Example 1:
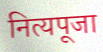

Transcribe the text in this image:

नित्यपूजा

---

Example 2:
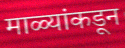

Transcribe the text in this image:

माळ्यांकडून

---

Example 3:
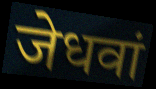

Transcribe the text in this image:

जेधवां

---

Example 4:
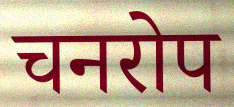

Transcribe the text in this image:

चनरोप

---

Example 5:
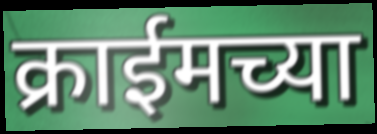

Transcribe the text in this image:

क्राईमच्या